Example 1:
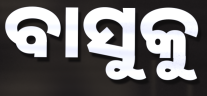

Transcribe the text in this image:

ବାସୁକୁ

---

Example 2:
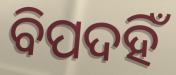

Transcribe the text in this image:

ବିପଦହିଁ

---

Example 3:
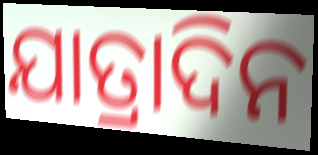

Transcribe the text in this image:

ଯାତ୍ରାଦିନ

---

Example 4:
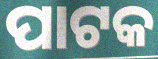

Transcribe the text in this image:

ପାଟକ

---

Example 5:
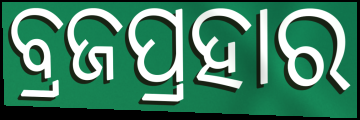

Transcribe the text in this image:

ବ୍ରଜପ୍ରହାର